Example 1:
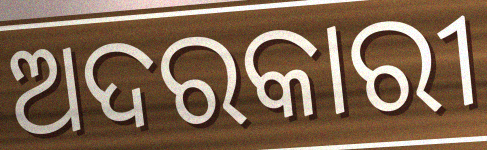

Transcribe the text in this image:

ଅଦରକାରୀ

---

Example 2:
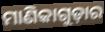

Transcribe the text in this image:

ମାଣିକାଗୁଡ଼ାର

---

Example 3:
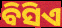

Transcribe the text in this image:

ବିସିଏ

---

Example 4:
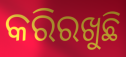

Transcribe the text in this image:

କରିରଖୁଛି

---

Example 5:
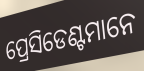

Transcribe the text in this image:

ପ୍ରେସିଡେଣ୍ଟମାନେ